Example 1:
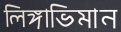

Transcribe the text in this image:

লিঙ্গাভিমান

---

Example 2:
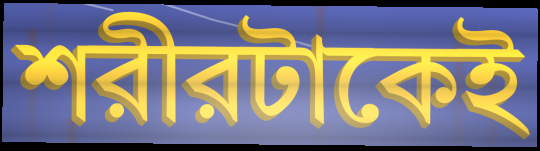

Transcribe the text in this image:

শরীরটাকেই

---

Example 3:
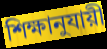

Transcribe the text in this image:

শিক্ষানুযায়ী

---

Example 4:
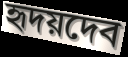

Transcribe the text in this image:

হৃদয়দেব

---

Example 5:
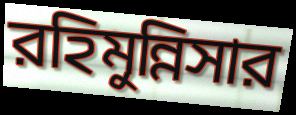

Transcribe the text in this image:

রহিমুন্নিসার